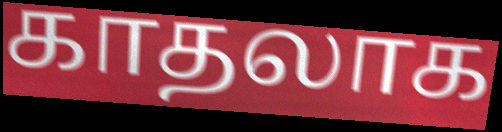
காதலாக